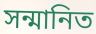
সন্মানিত